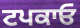
ਟਪਕਾਓ